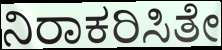
ನಿರಾಕರಿಸಿತೇ